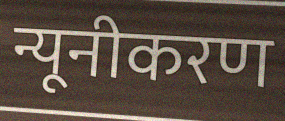
न्यूनीकरण